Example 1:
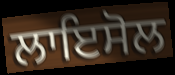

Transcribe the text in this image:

ਲਾਇਸੋਲ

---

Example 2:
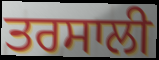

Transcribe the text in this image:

ਤਰਸਾਲੀ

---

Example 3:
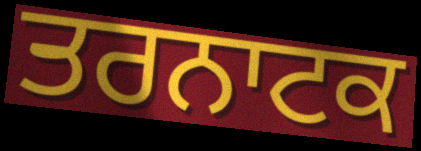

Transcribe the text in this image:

ਤਰਨਾਟਕ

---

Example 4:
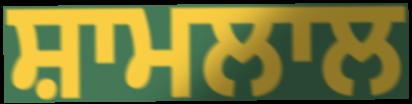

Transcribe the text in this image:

ਸ਼ਾਮਲਾਲ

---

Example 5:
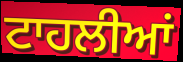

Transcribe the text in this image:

ਟਾਹਲੀਆਂ